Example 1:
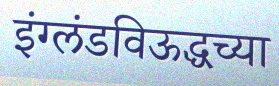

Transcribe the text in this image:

इंग्लंडविऊद्धच्या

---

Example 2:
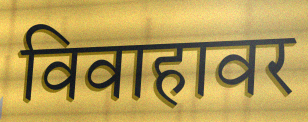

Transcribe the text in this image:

विवाहावर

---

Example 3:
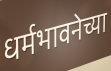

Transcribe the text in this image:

धर्मभावनेच्या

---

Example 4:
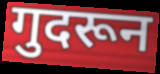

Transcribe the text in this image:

गुदरून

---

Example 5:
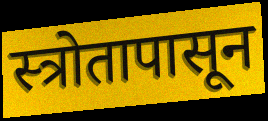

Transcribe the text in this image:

स्त्रोतापासून